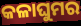
କଳାଘୁମର